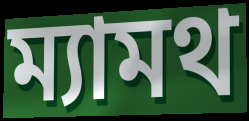
ম্যামথ